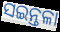
ସଇନ୍ତଳା